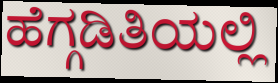
ಹೆಗ್ಗಡಿತಿಯಲ್ಲಿ